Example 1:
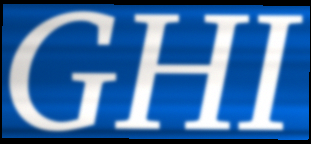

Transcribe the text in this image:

GHI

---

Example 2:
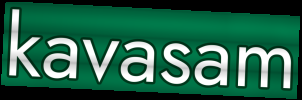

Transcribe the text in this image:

kavasam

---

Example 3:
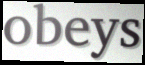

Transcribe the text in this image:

obeys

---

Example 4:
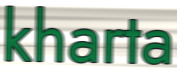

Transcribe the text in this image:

kharta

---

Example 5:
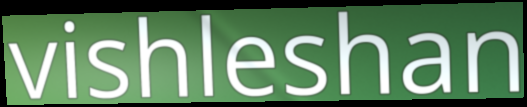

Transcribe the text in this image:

vishleshan